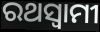
ରଥସ୍ୱାମୀ